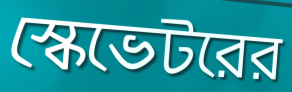
স্কেভেটরের